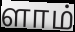
ளாம்